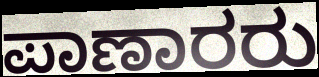
ಪಾಣಾರರು